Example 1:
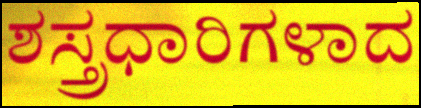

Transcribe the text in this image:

ಶಸ್ತ್ರಧಾರಿಗಳಾದ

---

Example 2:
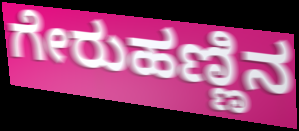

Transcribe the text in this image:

ಗೇರುಹಣ್ಣಿನ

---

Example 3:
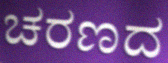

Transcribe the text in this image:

ಚರಣದ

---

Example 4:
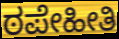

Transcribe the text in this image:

ಠಪೇಹೀತಿ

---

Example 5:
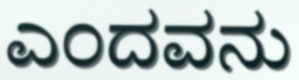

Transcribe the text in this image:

ಎಂದವನು